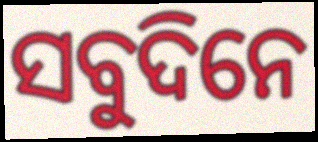
ସବୁଦିନେ